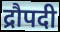
द्रौपदी